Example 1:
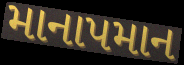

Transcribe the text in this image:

માનાપમાન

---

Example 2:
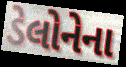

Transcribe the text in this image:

ડેલોનેના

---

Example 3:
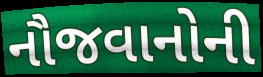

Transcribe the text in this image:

નૌજવાનોની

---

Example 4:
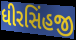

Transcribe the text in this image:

ધીરસિંહજી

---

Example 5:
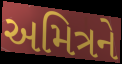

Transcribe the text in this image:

અમિત્રને